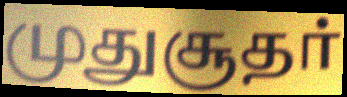
முதுசூதர்